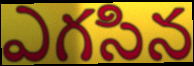
ఎగసిన